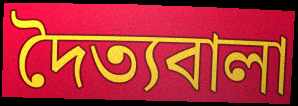
দৈত্যবালা